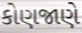
કોણજાણે